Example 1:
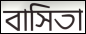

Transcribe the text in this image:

বাসিতা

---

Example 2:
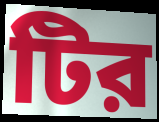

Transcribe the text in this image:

টির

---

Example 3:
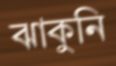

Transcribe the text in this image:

ঝাকুনি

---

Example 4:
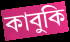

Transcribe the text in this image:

কাবুকি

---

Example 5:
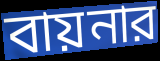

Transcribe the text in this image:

বায়নার